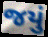
જયું